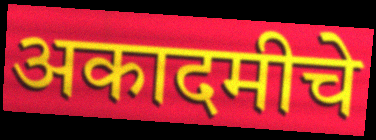
अकादमीचे